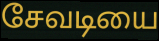
சேவடியை